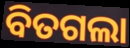
ବିତଗଲା